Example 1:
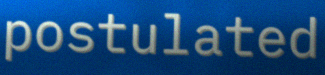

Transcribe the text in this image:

postulated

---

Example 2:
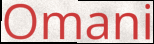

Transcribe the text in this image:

Omani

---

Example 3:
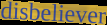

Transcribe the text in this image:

disbeliever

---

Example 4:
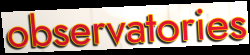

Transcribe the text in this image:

observatories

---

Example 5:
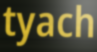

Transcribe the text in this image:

tyach